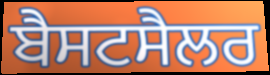
ਬੈਸਟਸੈਲਰ